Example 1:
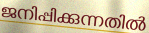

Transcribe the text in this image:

ജനിപ്പിക്കുന്നതിൽ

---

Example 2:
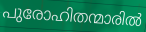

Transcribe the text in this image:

പുരോഹിതന്മാരിൽ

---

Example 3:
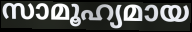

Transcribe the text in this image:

സാമൂഹ്യമായ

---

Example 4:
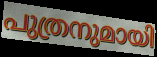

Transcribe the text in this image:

പുത്രനുമായി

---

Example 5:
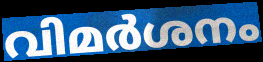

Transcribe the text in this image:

വിമർശനം